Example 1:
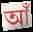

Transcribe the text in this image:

আঁ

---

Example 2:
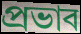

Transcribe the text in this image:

প্ৰভাব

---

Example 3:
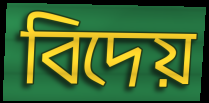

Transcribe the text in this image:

বিদেয়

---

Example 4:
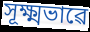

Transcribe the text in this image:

সূক্ষ্মভাৱে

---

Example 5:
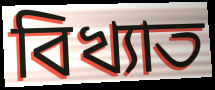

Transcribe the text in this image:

বিখ্যাত